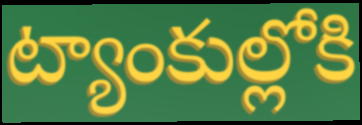
ట్యాంకుల్లోకి